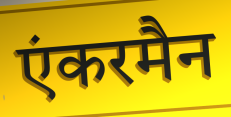
एंकरमैन